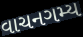
વાચનગમ્ય